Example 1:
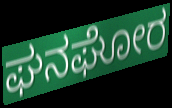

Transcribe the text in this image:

ಘನಘೋರ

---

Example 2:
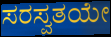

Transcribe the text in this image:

ಸರಸ್ವತಯೇ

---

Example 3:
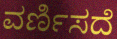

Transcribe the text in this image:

ವರ್ಣಿಸದೆ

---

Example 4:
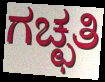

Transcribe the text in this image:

ಗಚ್ಛತಿ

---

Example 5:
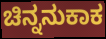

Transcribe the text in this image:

ಚಿನ್ನನುಕಾಕ